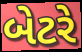
બેટરે